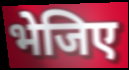
भेजिए